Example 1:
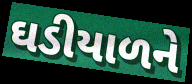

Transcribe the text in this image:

ઘડીયાળને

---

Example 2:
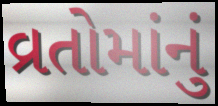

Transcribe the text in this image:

વ્રતોમાંનું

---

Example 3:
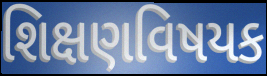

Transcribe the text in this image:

શિક્ષણવિષયક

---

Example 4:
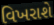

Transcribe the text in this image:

વિખરાશે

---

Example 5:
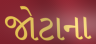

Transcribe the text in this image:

જોટાના